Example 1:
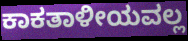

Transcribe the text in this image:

ಕಾಕತಾಳೀಯವಲ್ಲ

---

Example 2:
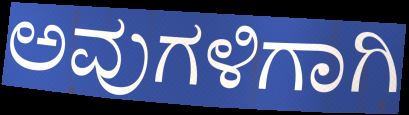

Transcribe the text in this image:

ಅವುಗಳಿಗಾಗಿ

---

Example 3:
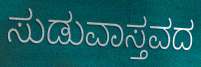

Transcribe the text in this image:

ಸುಡುವಾಸ್ತವದ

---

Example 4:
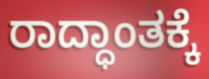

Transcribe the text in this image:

ರಾದ್ಧಾಂತಕ್ಕೆ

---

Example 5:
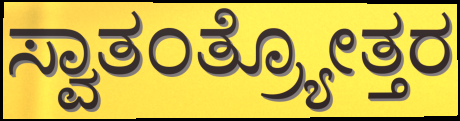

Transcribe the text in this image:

ಸ್ವಾತಂತ್ರ್ಯೋತ್ತರ